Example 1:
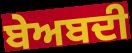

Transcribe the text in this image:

ਬੇਅਬਦੀ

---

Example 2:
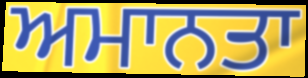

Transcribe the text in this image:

ਅਮਾਨਤਾ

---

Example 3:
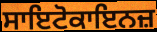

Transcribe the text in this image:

ਸਾਇਟੋਕਾਇਨਜ਼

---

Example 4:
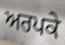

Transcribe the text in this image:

ਅਰਪਕੇ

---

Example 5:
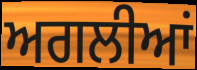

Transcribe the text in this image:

ਅਗਲੀਆਂ